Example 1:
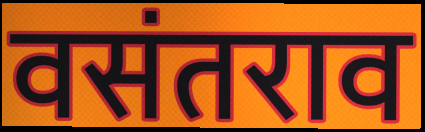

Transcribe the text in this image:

वसंतराव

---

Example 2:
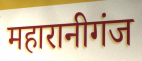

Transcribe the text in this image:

महारानीगंज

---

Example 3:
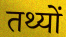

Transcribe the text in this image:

तथ्यों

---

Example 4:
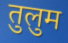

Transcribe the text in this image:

तुलुम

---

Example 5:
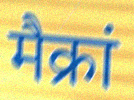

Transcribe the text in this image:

मैक्रां